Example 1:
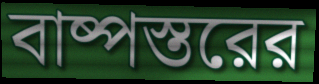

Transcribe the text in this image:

বাষ্পস্তরের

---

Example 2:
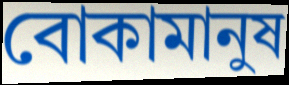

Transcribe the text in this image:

বোকামানুষ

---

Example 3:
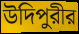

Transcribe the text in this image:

উদিপুরীর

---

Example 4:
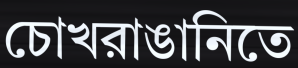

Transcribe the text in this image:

চোখরাঙানিতে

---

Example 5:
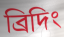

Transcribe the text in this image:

ব্রিদিং